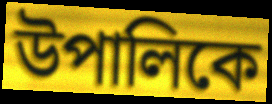
উপালিকে